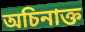
অচিনাক্ত